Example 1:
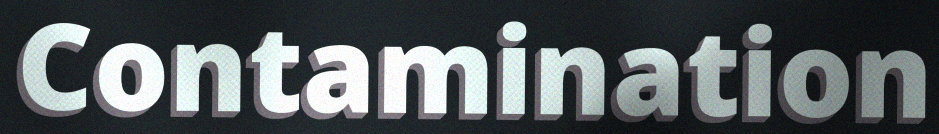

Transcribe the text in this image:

Contamination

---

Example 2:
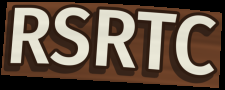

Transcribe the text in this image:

RSRTC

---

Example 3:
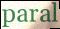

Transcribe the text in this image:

paral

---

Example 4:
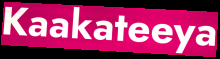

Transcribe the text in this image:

Kaakateeya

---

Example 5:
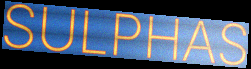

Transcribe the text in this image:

SULPHAS